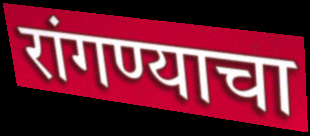
रांगण्याचा